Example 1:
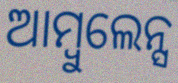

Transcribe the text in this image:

ଆମ୍ବୁଲେନ୍ସ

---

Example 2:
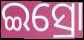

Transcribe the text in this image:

ଇସ୍ରୋ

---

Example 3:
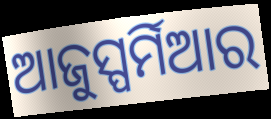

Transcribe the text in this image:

ଆଜୁସ୍ପର୍ମିଆର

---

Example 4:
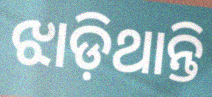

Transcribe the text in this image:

ଝାଡ଼ିଥାନ୍ତି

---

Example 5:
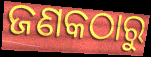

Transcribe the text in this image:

ଜଣକଠାରୁ